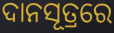
ଦାନସୂତ୍ରରେ